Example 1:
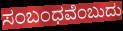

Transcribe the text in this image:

ಸಂಬಂಧವೆಂಬುದು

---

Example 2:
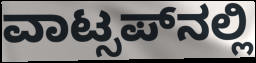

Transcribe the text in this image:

ವಾಟ್ಸಪ್‍ನಲ್ಲಿ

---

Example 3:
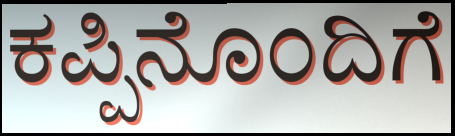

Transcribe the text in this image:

ಕಪ್ಪಿನೊಂದಿಗೆ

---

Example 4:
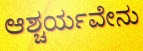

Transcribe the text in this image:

ಆಶ್ಚರ್ಯವೇನು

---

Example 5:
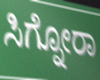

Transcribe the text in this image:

ಸಿಗ್ನೋರಾ